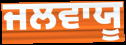
ਜਲਵਾਯੂ